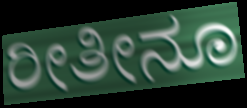
ರೀತೀನೂ